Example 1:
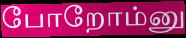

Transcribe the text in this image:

போறோம்னு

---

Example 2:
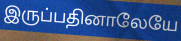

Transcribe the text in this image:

இருப்பதினாலேயே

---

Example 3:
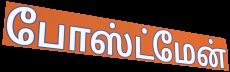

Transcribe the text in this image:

போஸ்ட்மேன்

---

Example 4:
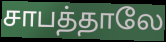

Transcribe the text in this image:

சாபத்தாலே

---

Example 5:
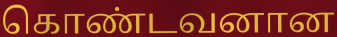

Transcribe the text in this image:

கொண்டவனான